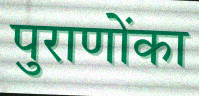
पुराणोंका